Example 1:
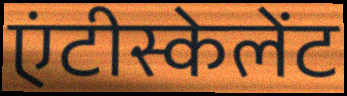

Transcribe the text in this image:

एंटीस्केलेंट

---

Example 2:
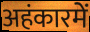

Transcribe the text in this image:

अहंकारमें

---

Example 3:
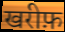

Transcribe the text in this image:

खरीफ़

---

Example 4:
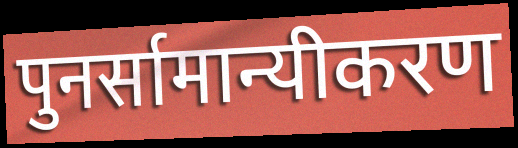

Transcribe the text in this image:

पुनर्सामान्यीकरण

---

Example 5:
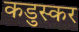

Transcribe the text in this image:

कडुस्कर